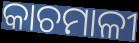
କାଚମାଳୀ